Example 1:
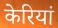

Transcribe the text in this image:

केरियां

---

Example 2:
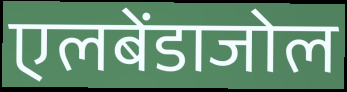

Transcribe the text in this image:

एलबेंडाजोल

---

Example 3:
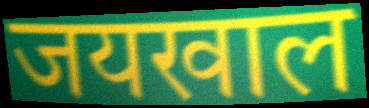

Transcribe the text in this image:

जयखाल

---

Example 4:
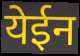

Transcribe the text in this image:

येईन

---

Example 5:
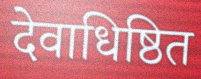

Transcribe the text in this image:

देवाधिष्ठित